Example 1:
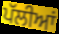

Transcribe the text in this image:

ਪੱਲੀਆਂ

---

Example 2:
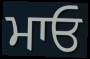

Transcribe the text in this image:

ਮਾਓ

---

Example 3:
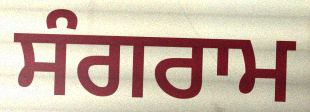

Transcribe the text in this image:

ਸੰਗਰਾਮ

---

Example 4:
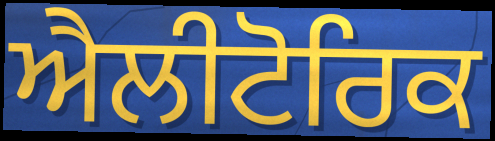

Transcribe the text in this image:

ਐਲੀਟੋਰਿਕ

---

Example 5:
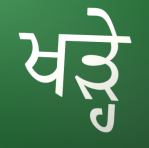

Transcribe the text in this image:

ਖਡ਼੍ਹੇ